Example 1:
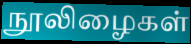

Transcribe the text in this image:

நூலிழைகள்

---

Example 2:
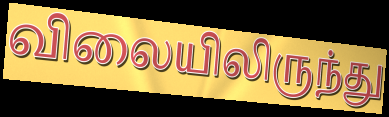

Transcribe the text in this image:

விலையிலிருந்து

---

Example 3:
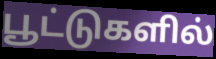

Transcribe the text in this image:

பூட்டுகளில்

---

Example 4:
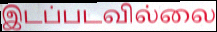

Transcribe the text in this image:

இடப்படவில்லை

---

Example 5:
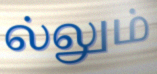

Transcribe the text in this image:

ல்லும்